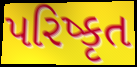
પરિષ્કૃત